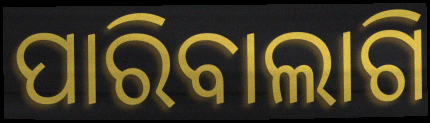
ପାରିବାଲାଗି